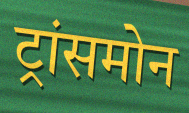
ट्रांसमोन